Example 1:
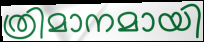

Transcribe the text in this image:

ത്രിമാനമായി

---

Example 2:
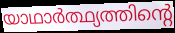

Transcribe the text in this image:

യാഥാർത്ഥ്യത്തിന്റെ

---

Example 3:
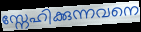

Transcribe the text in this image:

സ്നേഹിക്കുന്നവനെ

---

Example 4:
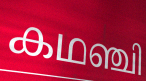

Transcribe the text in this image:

കഥഞ്ചി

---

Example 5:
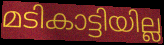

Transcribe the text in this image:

മടികാട്ടിയില്ല